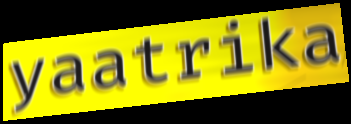
yaatrika